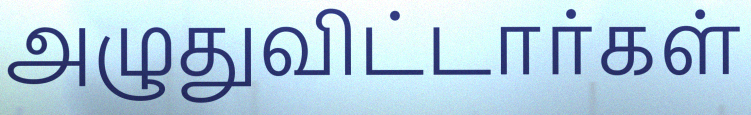
அழுதுவிட்டார்கள்